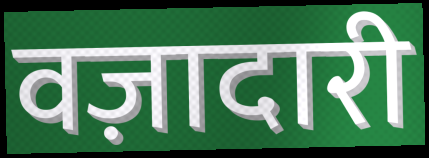
वज़ादारी